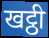
खट्ठी